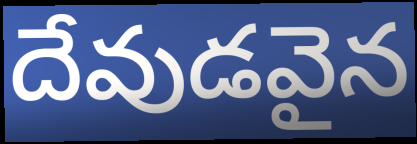
దేవుడవైన